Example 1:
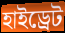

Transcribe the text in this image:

হাইড্রেট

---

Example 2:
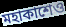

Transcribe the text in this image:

মহাকাশেও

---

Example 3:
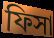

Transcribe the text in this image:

ফিসা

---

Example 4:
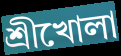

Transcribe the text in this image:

শ্রীখোলা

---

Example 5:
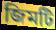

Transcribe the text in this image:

জিমটি